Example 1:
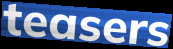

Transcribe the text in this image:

teasers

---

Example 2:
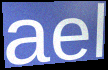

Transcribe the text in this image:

ael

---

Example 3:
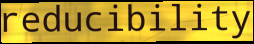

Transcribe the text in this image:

reducibility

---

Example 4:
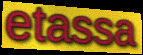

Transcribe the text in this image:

etassa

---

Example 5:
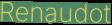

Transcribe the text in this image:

Renaudot